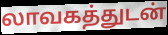
லாவகத்துடன்